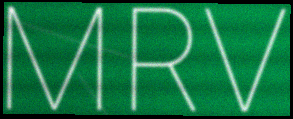
MRV